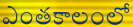
ఎంతకాలంలో